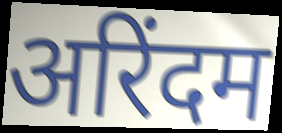
अरिंदम